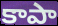
కాపా